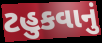
ટહુકવાનું